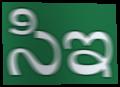
సిఇ